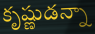
కృష్ణుడన్నా